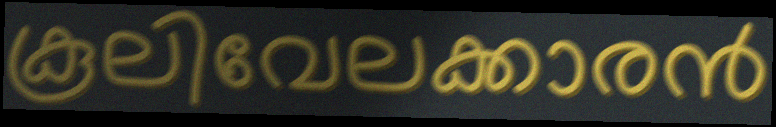
കൂലിവേലക്കാരൻ